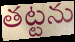
తట్టను